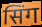
सिंग